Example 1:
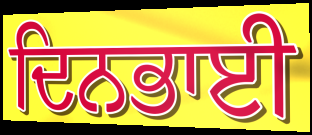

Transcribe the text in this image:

ਦਿਨਭਾਈ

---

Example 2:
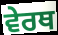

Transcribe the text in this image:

ਵੇਰਥ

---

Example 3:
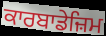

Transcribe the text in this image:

ਕਾਰਬਾਡੇਜ਼ਿਮ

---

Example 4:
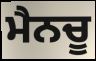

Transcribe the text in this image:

ਮੈਨਚੂ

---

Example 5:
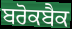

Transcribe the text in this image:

ਬਰੋਕਬੈਕ